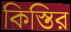
কিস্তির